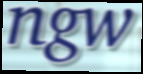
ngw